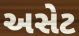
અસેટ